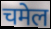
चमेल